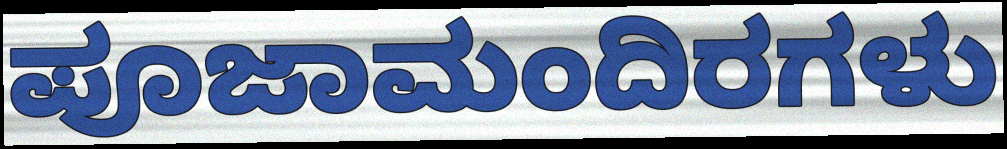
ಪೂಜಾಮಂದಿರಗಳು